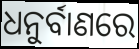
ଧନୁର୍ବାଣରେ